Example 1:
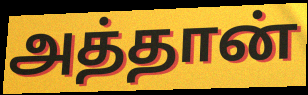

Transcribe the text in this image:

அத்தான்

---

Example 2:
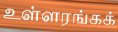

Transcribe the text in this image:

உள்ளரங்கக்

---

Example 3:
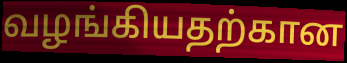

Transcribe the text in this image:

வழங்கியதற்கான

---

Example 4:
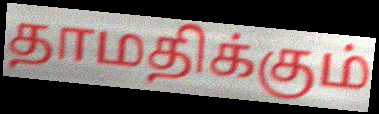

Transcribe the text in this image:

தாமதிக்கும்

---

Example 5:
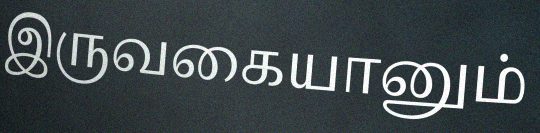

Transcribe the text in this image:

இருவகையானும்